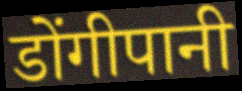
डोंगीपानी